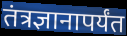
तंत्रज्ञानापर्यंत